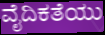
ವೈದಿಕತೆಯು